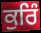
ਕੁਰਿੰ